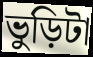
ভুড়িটা